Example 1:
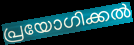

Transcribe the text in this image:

പ്രയോഗിക്കൽ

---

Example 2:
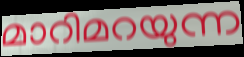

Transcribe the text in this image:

മാറിമറയുന്ന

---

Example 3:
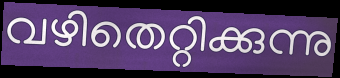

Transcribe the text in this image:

വഴിതെറ്റിക്കുന്നു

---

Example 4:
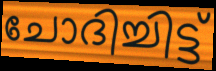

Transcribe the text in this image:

ചോദിച്ചിട്ട്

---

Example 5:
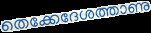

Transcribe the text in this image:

തെക്കേദേശത്താണു